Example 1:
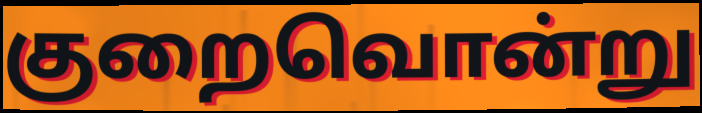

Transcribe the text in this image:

குறைவொன்று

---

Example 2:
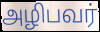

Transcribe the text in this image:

அழிபவர்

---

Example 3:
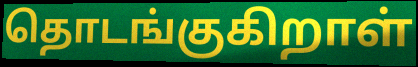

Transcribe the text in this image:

தொடங்குகிறாள்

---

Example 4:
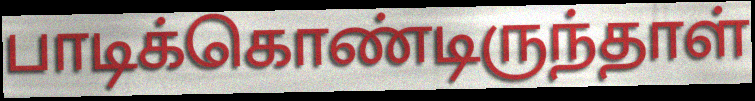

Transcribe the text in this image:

பாடிக்கொண்டிருந்தாள்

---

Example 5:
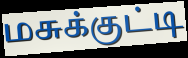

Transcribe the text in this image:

மசுக்குட்டி